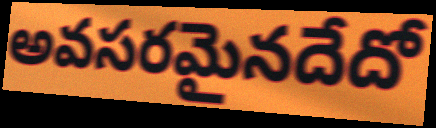
అవసరమైనదేదో